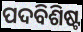
ପଦବିଶିଷ୍ଟ